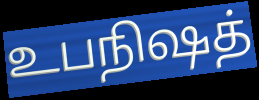
உபநிஷத்